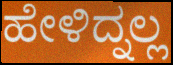
ಹೇಳಿದ್ನಲ್ಲ